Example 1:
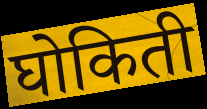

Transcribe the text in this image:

घोकिती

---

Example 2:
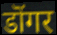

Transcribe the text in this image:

डॊंगर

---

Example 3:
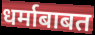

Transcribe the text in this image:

धर्माबाबत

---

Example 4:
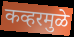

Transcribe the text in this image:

कव्हरमुळे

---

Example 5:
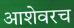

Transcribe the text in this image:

आशेवरच